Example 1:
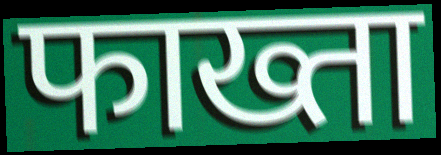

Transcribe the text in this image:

फाख्ता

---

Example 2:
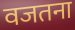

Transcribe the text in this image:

वजतना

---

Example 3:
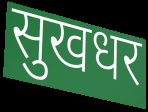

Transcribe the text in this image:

सुखधर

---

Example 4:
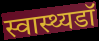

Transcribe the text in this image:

स्वास्थ्यडॉ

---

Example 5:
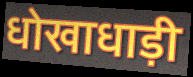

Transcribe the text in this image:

धोखाधाड़ी